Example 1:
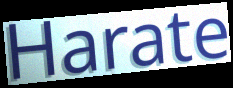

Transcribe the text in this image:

Harate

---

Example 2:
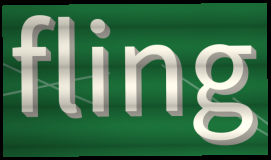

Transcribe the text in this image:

fling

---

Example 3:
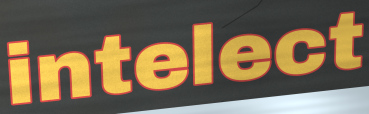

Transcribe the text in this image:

intelect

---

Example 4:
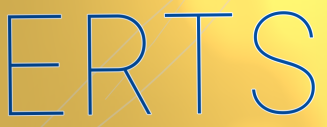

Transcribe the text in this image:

ERTS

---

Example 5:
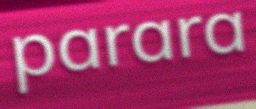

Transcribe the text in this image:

parara